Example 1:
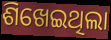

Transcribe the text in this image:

ଶିଖେଇଥିଲା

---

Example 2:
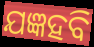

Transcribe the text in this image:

ଯଜ୍ଞହବି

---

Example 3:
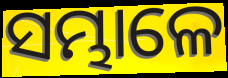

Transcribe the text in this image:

ସମ୍ଭାଳେ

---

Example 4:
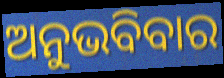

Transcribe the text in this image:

ଅନୁଭବିବାର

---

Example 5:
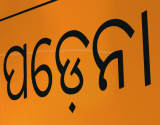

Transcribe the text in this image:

ପଡ଼େନା